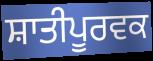
ਸ਼ਾਤੀਪੂਰਵਕ